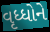
વૃધ્ધોને